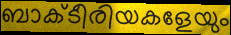
ബാക്ടീരിയകളേയും